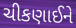
ચીકણાઈને